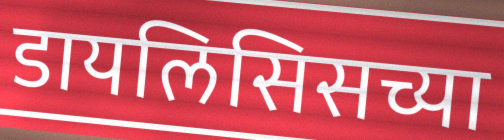
डायलिसिसच्या